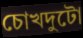
চোখদুটো